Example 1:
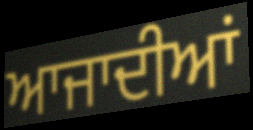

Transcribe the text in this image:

ਆਜਾਦੀਆਂ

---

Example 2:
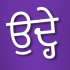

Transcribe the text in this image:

ਉਦ੍ਹੇ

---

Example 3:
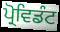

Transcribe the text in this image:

ਪ੍ਰੋਵਿਡੰਟ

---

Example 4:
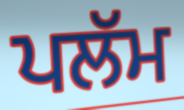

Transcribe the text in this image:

ਪਲੱਮ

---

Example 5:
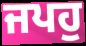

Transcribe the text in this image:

ਜਪਹੁ